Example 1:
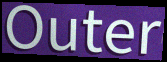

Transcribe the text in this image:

Outer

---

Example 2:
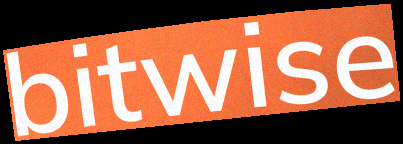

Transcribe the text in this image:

bitwise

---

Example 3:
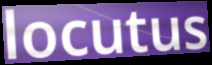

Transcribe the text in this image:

locutus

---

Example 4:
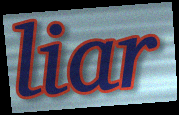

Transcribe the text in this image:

liar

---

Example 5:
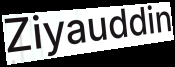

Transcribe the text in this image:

Ziyauddin